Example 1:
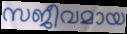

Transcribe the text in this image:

സജീവമായ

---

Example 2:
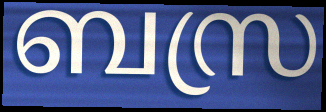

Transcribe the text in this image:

ബസ്ര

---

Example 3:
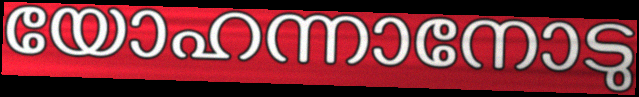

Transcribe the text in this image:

യോഹന്നാനോടു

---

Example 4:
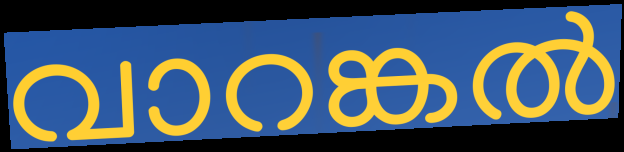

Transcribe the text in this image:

വാറങ്കൽ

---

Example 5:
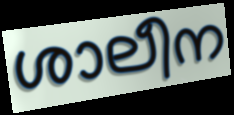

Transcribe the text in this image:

ശാലീന